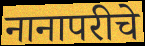
नानापरीचे